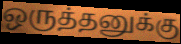
ஒருத்தனுக்கு